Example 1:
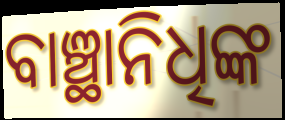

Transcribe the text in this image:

ବାଞ୍ଛାନିଧିଙ୍କ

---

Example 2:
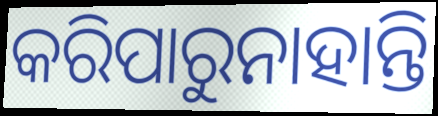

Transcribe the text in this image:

କରିପାରୁନାହାନ୍ତି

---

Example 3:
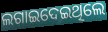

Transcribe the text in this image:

ଲଗାଇଦେଇଥିଲେ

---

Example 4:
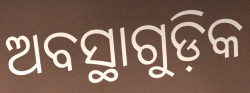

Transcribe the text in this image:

ଅବସ୍ଥାଗୁଡ଼ିକ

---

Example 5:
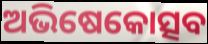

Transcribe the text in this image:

ଅଭିଷେକୋତ୍ସବ